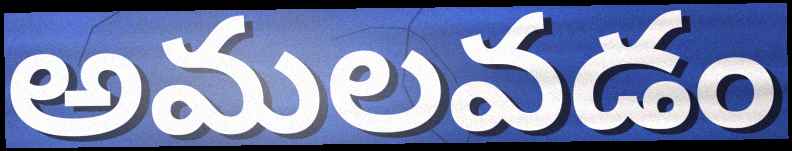
అమలవడం